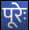
पूरेः